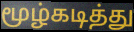
மூழ்கடித்து